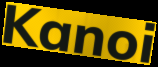
Kanoi